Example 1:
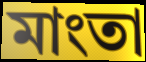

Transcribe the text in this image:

মাংতা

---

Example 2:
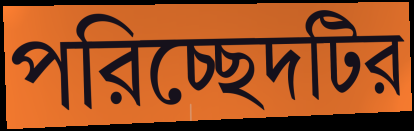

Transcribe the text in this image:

পরিচ্ছেদটির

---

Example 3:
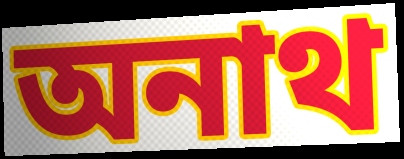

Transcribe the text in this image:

অনাথ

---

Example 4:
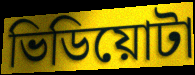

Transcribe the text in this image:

ভিডিয়োটা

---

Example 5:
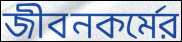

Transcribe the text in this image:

জীবনকর্মের